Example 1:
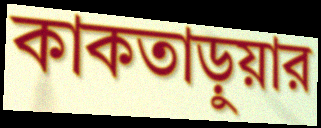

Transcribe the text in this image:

কাকতাড়ুয়ার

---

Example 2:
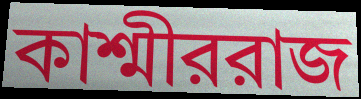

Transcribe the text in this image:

কাশ্মীররাজ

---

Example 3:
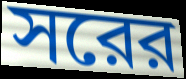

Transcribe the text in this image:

সরের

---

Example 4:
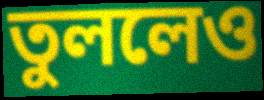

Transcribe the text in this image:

তুললেও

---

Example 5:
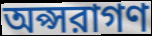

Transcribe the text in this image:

অপ্সরাগণ